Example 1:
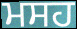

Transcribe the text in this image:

ਮਸਹ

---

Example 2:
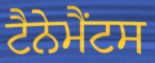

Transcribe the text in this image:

ਟੈਨੇਮੈਂਟਸ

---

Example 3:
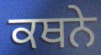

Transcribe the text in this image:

ਕਥਨੇ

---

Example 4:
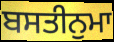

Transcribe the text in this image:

ਬਸਤੀਨੁਮਾ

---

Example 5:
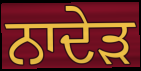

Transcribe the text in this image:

ਨਾਦੇੜ